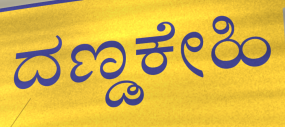
ದಣ್ಡಕೇಹಿ